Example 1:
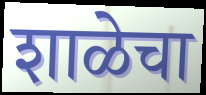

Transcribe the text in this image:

शाळेचा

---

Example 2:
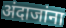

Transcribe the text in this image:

अंदाजांना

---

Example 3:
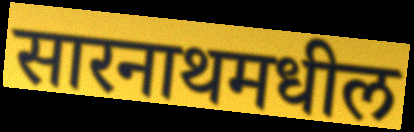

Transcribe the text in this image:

सारनाथमधील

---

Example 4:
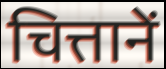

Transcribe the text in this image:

चित्तानें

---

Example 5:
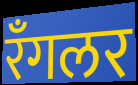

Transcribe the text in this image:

रॅंगलर